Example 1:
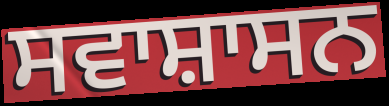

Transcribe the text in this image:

ਸਵਾਸ਼ਾਸਨ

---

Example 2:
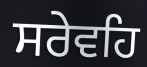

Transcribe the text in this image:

ਸਰੇਵਹਿ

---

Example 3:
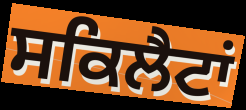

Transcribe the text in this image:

ਸਕਿਲੈਟਾਂ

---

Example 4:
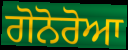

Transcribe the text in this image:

ਗੋਨੋਰੋਆ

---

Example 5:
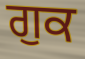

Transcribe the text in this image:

ਗੁਕ